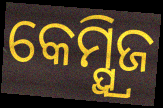
କେମ୍ପ୍ୱ୍ରିଜ